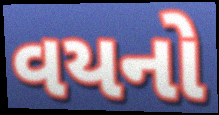
વયનો